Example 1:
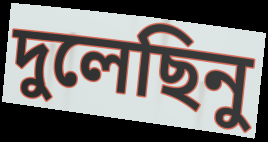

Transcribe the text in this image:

দুলেছিনু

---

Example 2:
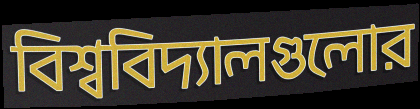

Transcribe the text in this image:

বিশ্ববিদ্যালগুলোর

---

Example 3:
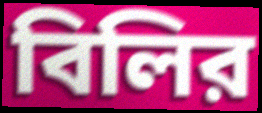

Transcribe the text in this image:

বিলির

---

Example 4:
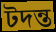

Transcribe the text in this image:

টদন্ত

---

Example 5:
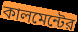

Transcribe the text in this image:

কালমেন্টের